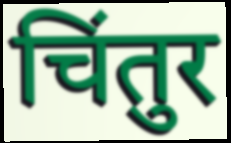
चिंतुर